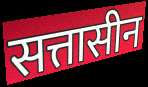
सत्तासीन